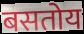
बसतोय